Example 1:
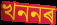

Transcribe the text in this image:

খননৰ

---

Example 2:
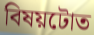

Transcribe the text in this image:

বিষয়টোত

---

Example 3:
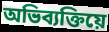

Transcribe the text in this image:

অভিব্যক্তিয়ে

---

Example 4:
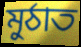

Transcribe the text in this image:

মুঠাত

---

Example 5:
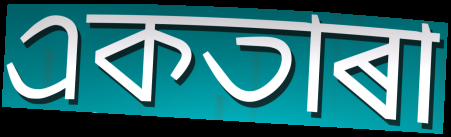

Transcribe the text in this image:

একতাৰা